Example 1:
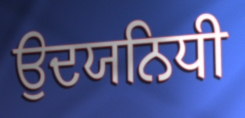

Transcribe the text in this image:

ਉਦਯਨਿਧੀ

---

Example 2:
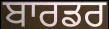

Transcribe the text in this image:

ਬਾਰਡਰ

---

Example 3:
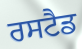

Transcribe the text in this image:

ਰਸਟੈਡ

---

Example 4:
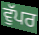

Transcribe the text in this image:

ਵੁੱਪਰ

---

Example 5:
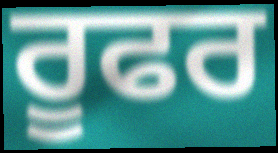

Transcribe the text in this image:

ਰੂਫਰ